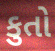
કુતો